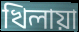
খিলায়া